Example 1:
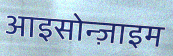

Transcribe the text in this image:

आइसोन्ज़ाइम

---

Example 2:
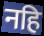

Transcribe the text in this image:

नहि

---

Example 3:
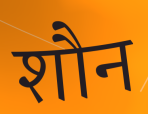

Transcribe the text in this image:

शौन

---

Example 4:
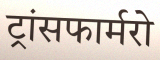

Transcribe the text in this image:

ट्रांसफार्मरो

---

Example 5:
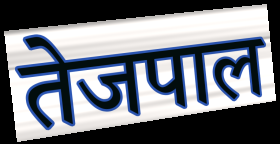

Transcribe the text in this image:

तेजपाल